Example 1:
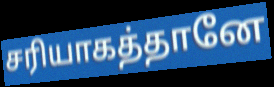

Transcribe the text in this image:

சரியாகத்தானே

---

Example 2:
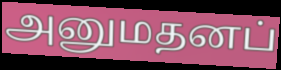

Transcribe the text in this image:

அனுமதனப்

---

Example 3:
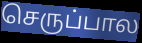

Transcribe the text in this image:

செருப்பால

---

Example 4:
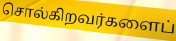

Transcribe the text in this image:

சொல்கிறவர்களைப்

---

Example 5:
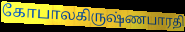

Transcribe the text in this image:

கோபாலகிருஷ்ணபாரதி